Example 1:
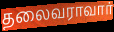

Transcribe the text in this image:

தலைவராவார்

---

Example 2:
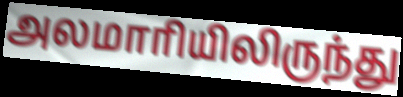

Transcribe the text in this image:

அலமாரியிலிருந்து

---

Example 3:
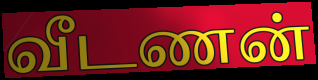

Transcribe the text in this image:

வீடணன்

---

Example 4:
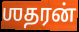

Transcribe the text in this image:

ஶதரன்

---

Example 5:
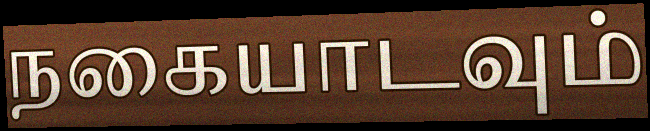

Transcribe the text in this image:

நகையாடவும்